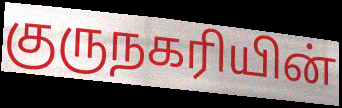
குருநகரியின்